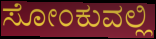
ಸೋಂಕುವಲ್ಲಿ